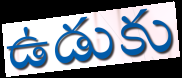
ఉడుకు